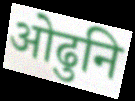
ओढुनि